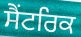
ਸੈਂਟਰਿਕ